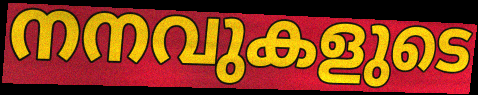
നനവുകളുടെ